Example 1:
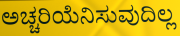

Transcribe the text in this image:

ಅಚ್ಚರಿಯೆನಿಸುವುದಿಲ್ಲ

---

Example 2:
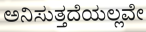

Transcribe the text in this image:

ಅನಿಸುತ್ತದೆಯಲ್ಲವೇ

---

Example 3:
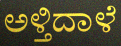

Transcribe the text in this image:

ಅಳ್ತಿದಾಳೆ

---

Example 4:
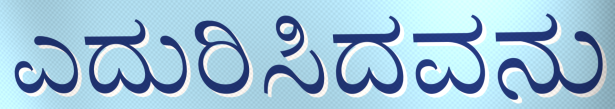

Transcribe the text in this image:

ಎದುರಿಸಿದವನು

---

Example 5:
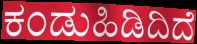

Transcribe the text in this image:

ಕಂಡುಹಿಡಿದಿದೆ